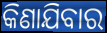
କିଣାଯିବାର